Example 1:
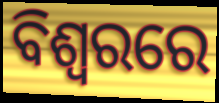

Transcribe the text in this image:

ବିଶ୍ବରରେ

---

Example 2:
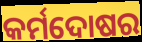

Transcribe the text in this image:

କର୍ମଦୋଷର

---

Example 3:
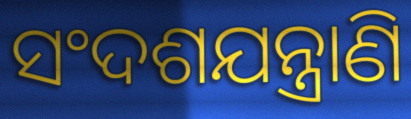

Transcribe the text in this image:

ସଂଦଶଯନ୍ତ୍ରାଣି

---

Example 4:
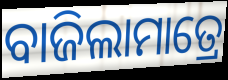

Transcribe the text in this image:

ବାଜିଲାମାତ୍ରେ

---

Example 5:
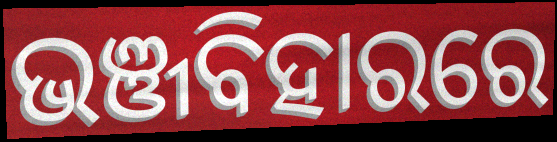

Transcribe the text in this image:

ଭଞ୍ଜବିହାରରେ